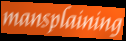
mansplaining